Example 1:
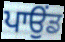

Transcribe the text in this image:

ਪਾਉਂਡ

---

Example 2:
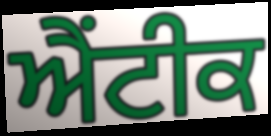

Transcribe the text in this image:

ਐਂਟੀਕ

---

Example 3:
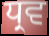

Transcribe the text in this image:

ਧ੍ਰਵ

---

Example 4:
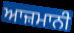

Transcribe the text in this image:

ਆਜ਼ਮਾਨੀ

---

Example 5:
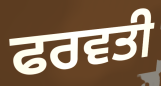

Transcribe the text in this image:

ਫਰਵਤੀ